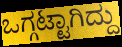
ಒಗ್ಗಟ್ಟಾಗಿದ್ದು